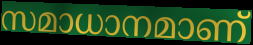
സമാധാനമാണ്